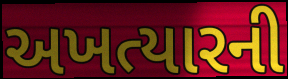
અખત્યારની